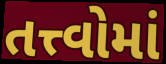
તત્ત્વોમાં